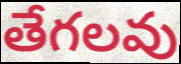
తేగలవు